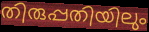
തിരുപ്പതിയിലും